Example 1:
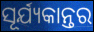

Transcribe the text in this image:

ସୂର୍ଯ୍ୟକାନ୍ତର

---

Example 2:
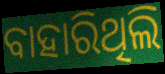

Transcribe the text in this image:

ବାହାରିଥିଲି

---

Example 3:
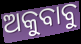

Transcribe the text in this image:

ଅକୁବାବୁ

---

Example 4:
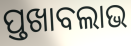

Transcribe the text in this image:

ପ୍ତଖାବଲାଭ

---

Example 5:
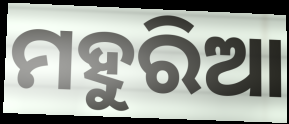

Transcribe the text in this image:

ମହୁରିଆ